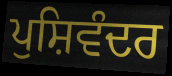
ਪੁਸ਼ਿਵੰਦਰ